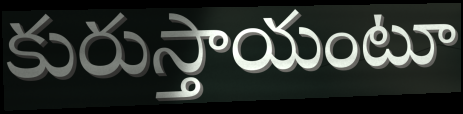
కురుస్తాయంటూ